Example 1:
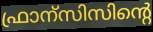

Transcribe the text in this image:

ഫ്രാന്സിസിന്റെ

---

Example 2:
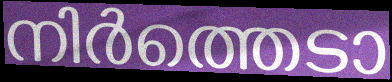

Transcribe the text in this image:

നിർത്തെടാ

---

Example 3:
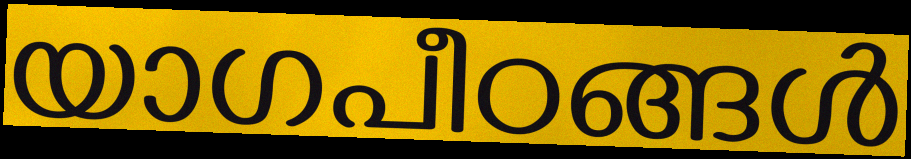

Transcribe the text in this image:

യാഗപീഠങ്ങൾ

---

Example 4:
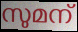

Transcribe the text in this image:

സുമന്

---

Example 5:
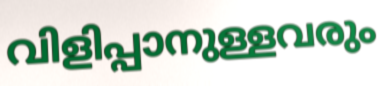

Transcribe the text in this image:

വിളിപ്പാനുള്ളവരും